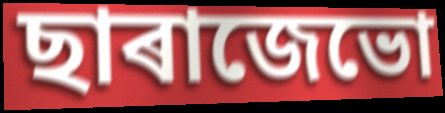
ছাৰাজেভো